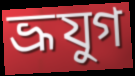
ভ্রূযুগ